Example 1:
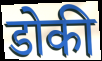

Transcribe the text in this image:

डोकी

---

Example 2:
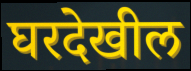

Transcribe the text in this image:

घरदेखील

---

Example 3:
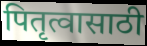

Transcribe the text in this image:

पितृत्वासाठी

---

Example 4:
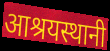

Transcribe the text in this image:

आश्रयस्थानी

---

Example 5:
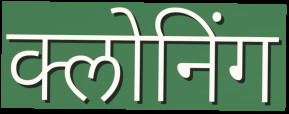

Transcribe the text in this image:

क्लोनिंग